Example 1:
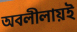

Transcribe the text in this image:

অবলীলায়ই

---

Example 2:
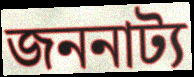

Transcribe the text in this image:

জননাট্য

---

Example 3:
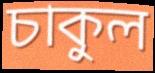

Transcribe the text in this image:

চাকুল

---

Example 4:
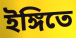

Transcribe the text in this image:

ইঙ্গিতে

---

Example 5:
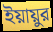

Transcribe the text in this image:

ইয়ায়ুর